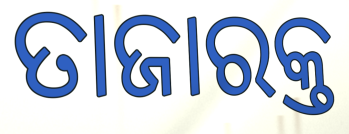
ତାଜାରକ୍ତ